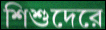
শিশুদেরে